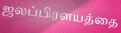
ஜலப்பிரளயத்தை